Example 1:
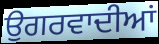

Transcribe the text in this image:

ਉਗਰਵਾਦੀਆਂ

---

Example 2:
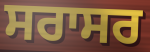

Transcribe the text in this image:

ਸਰਾਸਰ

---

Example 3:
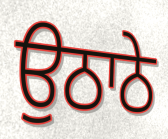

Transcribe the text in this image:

ਉਠਾਠੇ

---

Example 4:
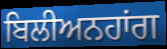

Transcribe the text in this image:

ਬਿਲੀਅਨਹਾਂਗ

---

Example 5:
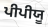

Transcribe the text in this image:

ਪੀਪੀਯੂ